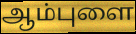
ஆம்புளை